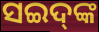
ସଇଦ୍‌ଙ୍କ